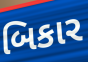
બિકાર